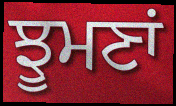
ਝੂਮਣਾਂ